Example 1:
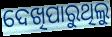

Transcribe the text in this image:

ଦେଖିପାରୁଥିଲୁ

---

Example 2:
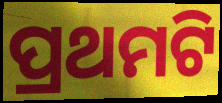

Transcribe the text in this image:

ପ୍ରଥମଟି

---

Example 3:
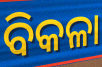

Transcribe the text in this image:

ବିକଳା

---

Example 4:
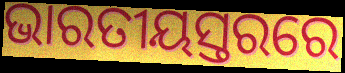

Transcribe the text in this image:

ଭାରତୀୟସ୍ତରରେ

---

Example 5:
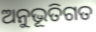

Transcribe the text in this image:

ଅନୁଭୂତିଗତ